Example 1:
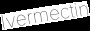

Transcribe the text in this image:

Ivermectin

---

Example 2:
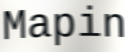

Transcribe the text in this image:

Mapin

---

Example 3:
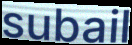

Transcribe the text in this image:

subail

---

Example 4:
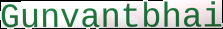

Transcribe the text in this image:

Gunvantbhai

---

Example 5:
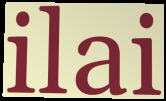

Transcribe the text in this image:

ilai